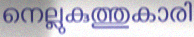
നെല്ലുകുത്തുകാരി